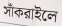
সাঁকরাইলে